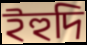
ইহুদি